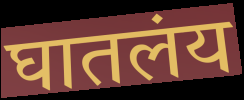
घातलंय